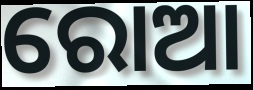
ରୋଆ